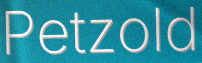
Petzold